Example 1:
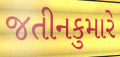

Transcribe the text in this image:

જતીનકુમારે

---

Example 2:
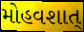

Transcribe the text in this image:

મોહવશાત્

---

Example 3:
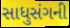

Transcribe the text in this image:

સાધુસંગની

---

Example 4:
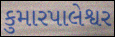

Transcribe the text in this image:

કુમારપાલેશ્વર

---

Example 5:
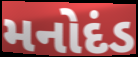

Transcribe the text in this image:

મનોદંડ